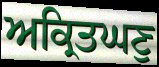
ਅਕ੍ਰਿਤਘਣੁ